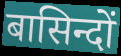
बासिन्दों